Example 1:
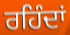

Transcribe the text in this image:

ਰਹਿੰਦਾਂ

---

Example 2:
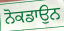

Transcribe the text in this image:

ਨੋਕਡਾਉਨ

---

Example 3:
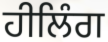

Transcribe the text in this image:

ਹੀਲਿੰਗ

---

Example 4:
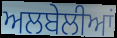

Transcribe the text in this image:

ਅਲਬੇਲੀਆਂ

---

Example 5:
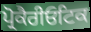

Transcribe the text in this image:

ਪ੍ਰੋਕੈਰੀਓਟਿਕ